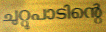
ചുറ്റുപാടിന്റെ